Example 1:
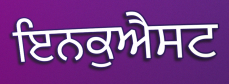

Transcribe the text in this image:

ਇਨਕੁਐਸਟ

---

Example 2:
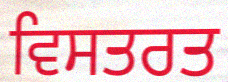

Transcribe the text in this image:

ਵਿਸਤਰਤ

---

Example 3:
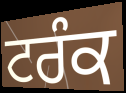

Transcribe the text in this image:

ਟਰੰਕ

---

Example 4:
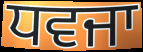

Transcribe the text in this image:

ਧਵਜਾ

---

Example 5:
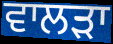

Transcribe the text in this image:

ਵਾਲੜਾ